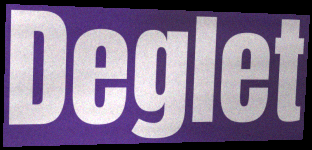
Deglet